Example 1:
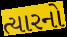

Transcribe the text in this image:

ત્યારનો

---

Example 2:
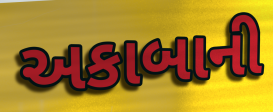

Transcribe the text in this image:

અકાબાની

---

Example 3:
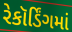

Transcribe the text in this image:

રેકૉર્ડિંગમાં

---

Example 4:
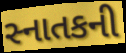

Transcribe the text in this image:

સ્નાતકની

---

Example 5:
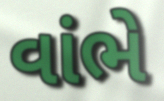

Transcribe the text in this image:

વાંભે